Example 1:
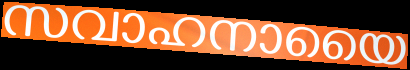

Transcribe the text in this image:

സവാഹനായൈ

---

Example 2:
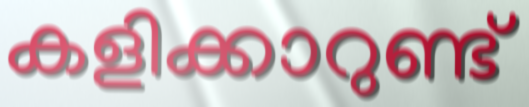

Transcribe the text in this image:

കളിക്കാറുണ്ട്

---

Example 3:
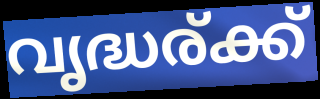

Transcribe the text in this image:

വൃദ്ധര്ക്ക്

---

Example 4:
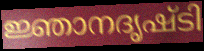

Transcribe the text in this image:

ജ്ഞാനദൃഷ്ടി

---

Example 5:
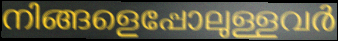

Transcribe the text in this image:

നിങ്ങളെപ്പോലുള്ളവർ